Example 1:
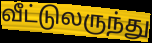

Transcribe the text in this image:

வீட்டுலருந்து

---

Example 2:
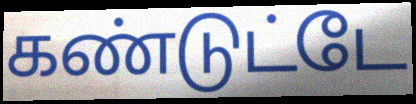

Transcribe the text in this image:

கண்டுட்டே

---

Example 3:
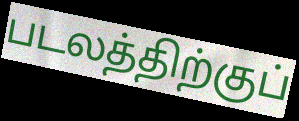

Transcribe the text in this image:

படலத்திற்குப்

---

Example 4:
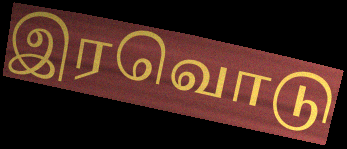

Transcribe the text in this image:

இரவொடு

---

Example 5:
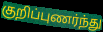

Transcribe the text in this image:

குறிப்புணர்ந்து